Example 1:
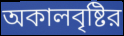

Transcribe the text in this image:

অকালবৃষ্টির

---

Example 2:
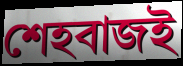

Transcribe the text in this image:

শেহবাজই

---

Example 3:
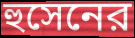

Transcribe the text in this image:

হুসেনের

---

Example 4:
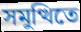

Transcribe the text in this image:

সমুত্থিতে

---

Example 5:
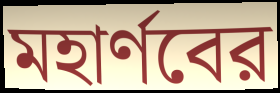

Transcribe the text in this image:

মহার্ণবের